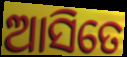
ଆସିତେ